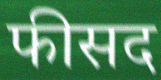
फीसद